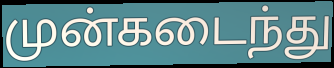
முன்கடைந்து